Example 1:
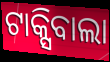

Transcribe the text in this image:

ଟାକ୍ସିବାଲା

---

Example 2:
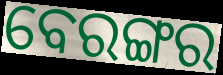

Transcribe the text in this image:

ବେରଙ୍ଗର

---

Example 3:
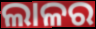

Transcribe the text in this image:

ଲାଳର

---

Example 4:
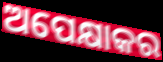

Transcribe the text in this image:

ଅପେକ୍ଷାକର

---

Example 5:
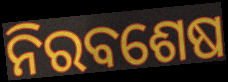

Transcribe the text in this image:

ନିରବଶେଷ